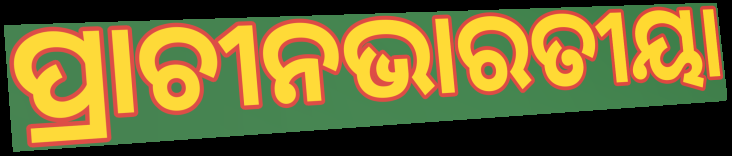
ପ୍ରାଚୀନଭାରତୀୟା